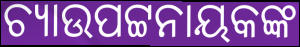
ଚ୍ୟାଉପଟ୍ଟନାୟକଙ୍କ